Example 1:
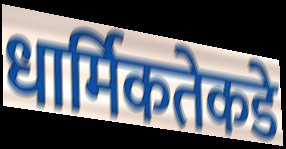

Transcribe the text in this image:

धार्मिकतेकडे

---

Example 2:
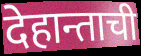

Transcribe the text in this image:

देहान्ताची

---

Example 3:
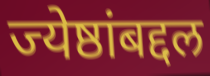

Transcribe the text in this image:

ज्येष्ठांबद्दल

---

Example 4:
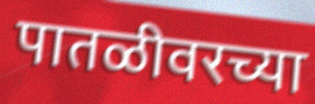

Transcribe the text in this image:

पातळीवरच्या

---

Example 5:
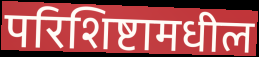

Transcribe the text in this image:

परिशिष्टामधील